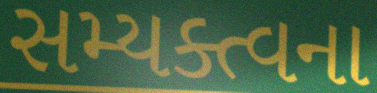
સમ્યક્ત્વના